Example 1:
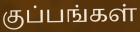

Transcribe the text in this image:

குப்பங்கள்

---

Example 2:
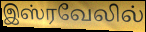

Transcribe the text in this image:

இஸ்ரவேலில்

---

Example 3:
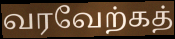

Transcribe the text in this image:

வரவேற்கத்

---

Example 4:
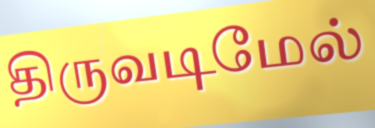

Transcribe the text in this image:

திருவடிமேல்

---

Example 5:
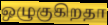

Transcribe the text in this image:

ஒழுகுகிறதா